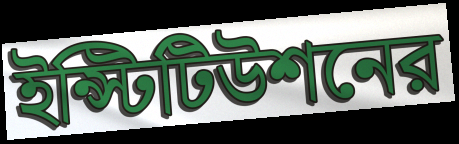
ইন্স্টিটিউশনের